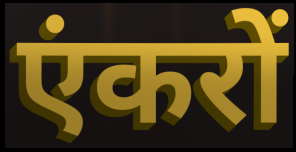
एंकरों